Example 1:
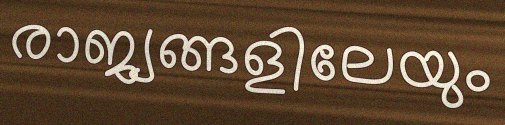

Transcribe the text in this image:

രാജ്യങ്ങളിലേയും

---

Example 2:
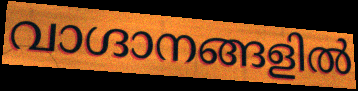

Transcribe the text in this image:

വാഗ്ദാനങ്ങളിൽ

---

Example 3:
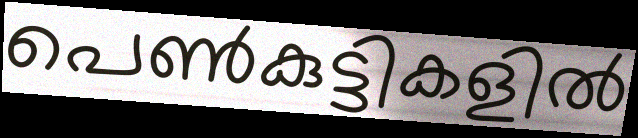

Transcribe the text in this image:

പെൺകുട്ടികളിൽ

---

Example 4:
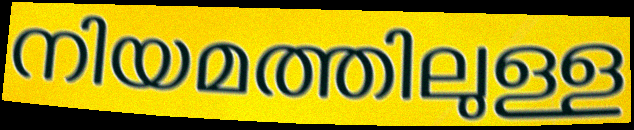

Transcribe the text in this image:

നിയമത്തിലുള്ള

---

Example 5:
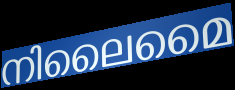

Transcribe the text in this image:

നിലൈമൈ